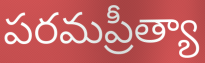
పరమప్రీత్యా